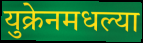
युक्रेनमधल्या